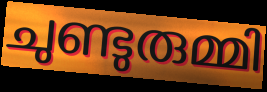
ചുണ്ടുരുമ്മി